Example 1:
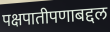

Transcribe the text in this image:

पक्षपातीपणाबद्दल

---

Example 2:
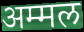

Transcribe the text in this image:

अम्मल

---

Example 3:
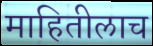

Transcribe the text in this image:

माहितीलाच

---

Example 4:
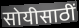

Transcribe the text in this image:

सोयीसाठीं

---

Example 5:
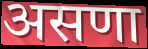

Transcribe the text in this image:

असणा